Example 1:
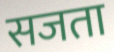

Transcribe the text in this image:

सजता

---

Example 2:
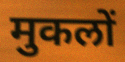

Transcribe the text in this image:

मुकलों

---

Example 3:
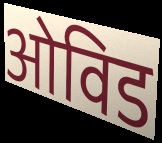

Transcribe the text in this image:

ओविड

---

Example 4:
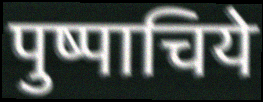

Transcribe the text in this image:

पुष्पाचिये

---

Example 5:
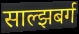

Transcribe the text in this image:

साल्झबर्ग